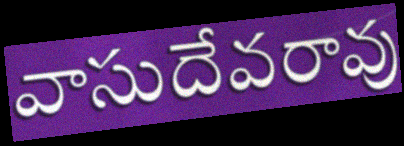
వాసుదేవరావు